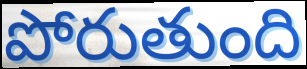
పోరుతుంది